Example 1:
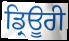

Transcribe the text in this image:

ਡ੍ਰਿਊਰੀ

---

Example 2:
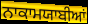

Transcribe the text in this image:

ਨਾਕਾਮਯਾਬੀਆਂ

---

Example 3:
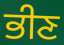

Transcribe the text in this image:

ਭੀਣ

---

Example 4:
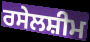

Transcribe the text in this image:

ਰਸੇਲਸ਼ੀਮ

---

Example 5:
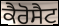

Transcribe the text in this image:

ਕੈਰੋਸੈਟ